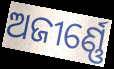
ଅଜୀର୍ଣ୍ଣେ